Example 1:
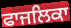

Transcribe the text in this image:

ਫਾਜਲਿਕਾ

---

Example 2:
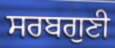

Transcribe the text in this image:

ਸਰਬਗੁਣੀ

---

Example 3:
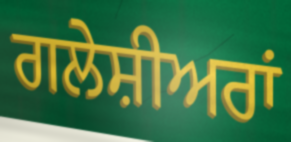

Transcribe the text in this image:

ਗਲੇਸ਼ੀਅਰਾਂ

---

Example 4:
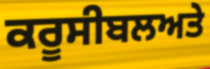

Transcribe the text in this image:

ਕਰੂਸੀਬਲਅਤੇ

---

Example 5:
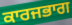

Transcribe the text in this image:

ਕਾਰਜਭਾਗ